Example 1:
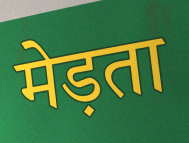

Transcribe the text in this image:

मेड़ता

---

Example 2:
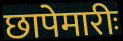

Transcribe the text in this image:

छापेमारीः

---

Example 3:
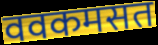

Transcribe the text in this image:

ववकमसत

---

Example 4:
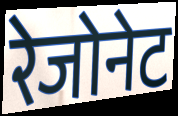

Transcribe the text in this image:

रेजोनेट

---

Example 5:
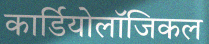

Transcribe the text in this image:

कार्डियोलॉजिकल